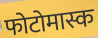
फोटोमास्क